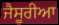
ਜੈਸੂਰੀਆ